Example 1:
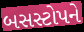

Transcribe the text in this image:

બસસ્ટોપને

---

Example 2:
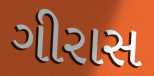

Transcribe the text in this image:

ગીરાસ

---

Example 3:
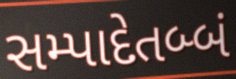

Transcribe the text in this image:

સમ્પાદેતબ્બં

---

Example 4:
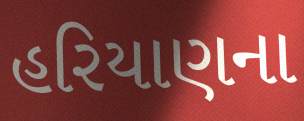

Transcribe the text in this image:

હરિયાણના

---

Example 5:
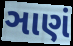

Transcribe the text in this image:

ઞાણં